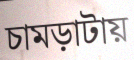
চামড়াটায়